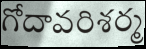
గోదావరిశర్మ